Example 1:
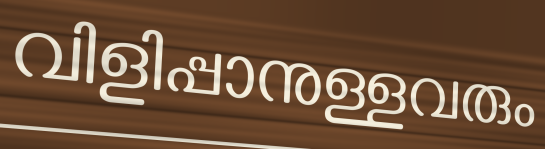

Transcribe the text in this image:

വിളിപ്പാനുള്ളവരും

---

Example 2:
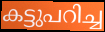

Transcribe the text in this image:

കട്ടുപറിച്ച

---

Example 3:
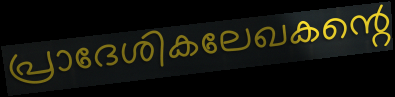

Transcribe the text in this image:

പ്രാദേശികലേഖകന്റെ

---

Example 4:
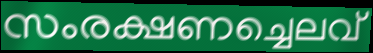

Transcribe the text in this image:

സംരക്ഷണച്ചെലവ്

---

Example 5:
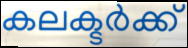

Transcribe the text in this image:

കലക്ടർക്ക്